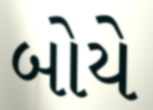
બોયે